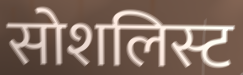
सोशलिस्‍ट